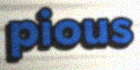
pious